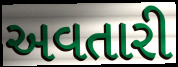
અવતારી